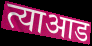
त्याआड